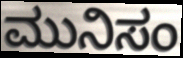
ಮುನಿಸಂ